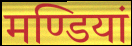
मण्डियां